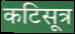
कटिसूत्र